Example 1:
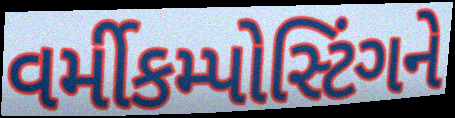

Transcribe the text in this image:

વર્મીકમ્પોસ્ટિંગને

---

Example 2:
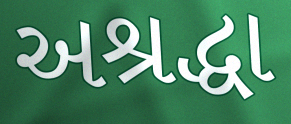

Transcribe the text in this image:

અશ્રદ્ધા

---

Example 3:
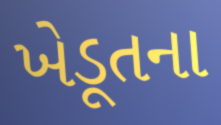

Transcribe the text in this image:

ખેડૂતના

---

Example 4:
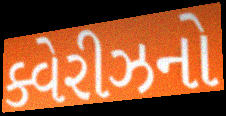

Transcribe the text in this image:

ક્વેરીઝનો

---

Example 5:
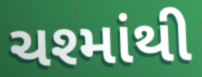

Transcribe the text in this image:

ચશ્માંથી